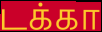
டக்கா